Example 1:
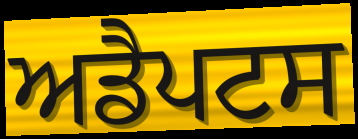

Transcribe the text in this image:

ਅਡੈਪਟਸ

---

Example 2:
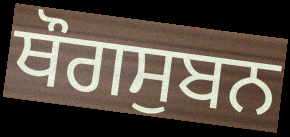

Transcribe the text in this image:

ਥੌਗਸੁਬਨ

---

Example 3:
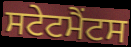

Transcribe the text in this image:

ਸਟੇਟਮੈਂਟਸ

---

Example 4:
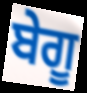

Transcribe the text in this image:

ਬੇਗੂ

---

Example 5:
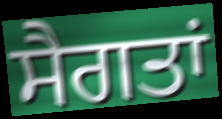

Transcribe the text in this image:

ਸੈਗਤਾਂ